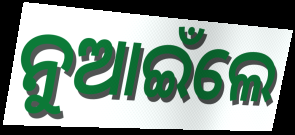
ନୁଆଇଁଲେ